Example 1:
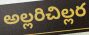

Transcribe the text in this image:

అల్లరిచిల్లర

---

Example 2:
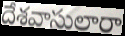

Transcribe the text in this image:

దేశవాసులారా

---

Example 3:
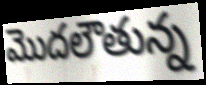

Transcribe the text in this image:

మొదలౌతున్న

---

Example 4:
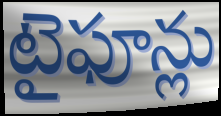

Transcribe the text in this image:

టైఫూన్లు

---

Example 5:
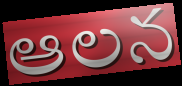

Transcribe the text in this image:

ఆలన